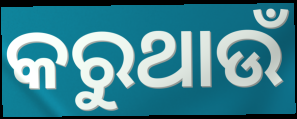
କରୁଥାଉଁ